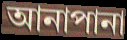
আনাপানা